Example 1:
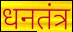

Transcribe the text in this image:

धनतंत्र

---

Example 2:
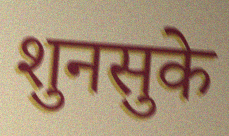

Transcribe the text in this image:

शुनसुके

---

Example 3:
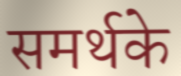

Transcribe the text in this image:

समर्थके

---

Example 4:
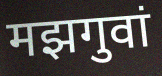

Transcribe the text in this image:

मझगुवां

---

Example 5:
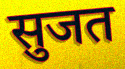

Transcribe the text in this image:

सुजत